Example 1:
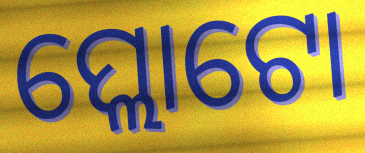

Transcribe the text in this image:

ପ୍ଲୋଟୋ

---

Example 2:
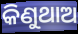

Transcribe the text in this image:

କିଣୁଥାଅ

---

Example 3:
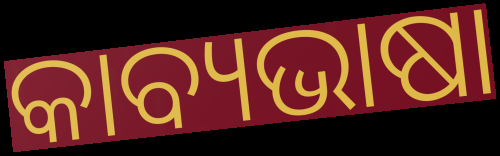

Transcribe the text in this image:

କାବ୍ୟଭାଷା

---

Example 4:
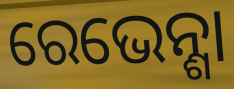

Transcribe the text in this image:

ରେଭେନ୍ଶା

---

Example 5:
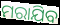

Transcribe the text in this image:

ମରାଯିବ